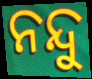
ନନ୍ଦୁ